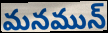
మనమున్